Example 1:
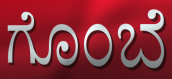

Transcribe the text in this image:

ಗೊಂಬೆ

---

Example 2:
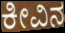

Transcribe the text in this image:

ಕೀವಿನ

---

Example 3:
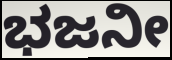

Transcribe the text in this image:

ಭಜನೀ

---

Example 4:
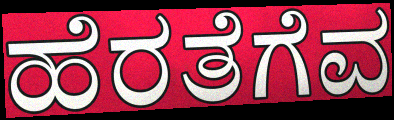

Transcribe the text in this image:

ಹೆರತೆಗೆವ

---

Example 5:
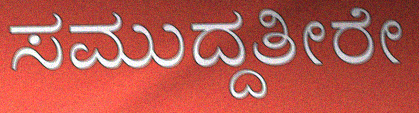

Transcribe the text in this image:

ಸಮುದ್ದತೀರೇ